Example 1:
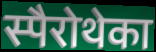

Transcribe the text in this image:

स्पैरोथेका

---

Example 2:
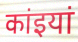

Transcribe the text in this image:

कांइयां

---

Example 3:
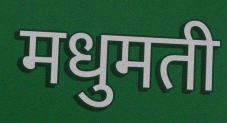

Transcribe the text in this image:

मधुमती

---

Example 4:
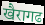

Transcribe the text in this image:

खैरागढ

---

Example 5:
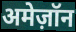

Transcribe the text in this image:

अमेज़ॉन